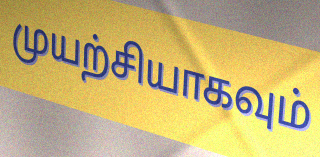
முயற்சியாகவும்